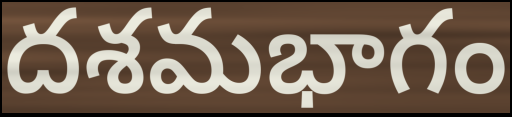
దశమభాగం